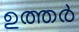
ഉത്തർ